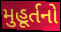
મુહૂર્તનો